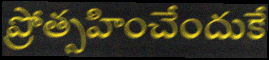
ప్రోత్సహించేందుకే